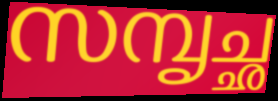
സമ്പൃച്ഛ